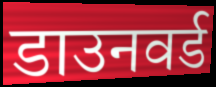
डाउनवर्ड